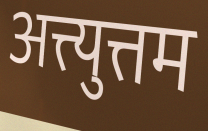
अत्त्युत्तम